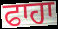
ਫਾਹਾ